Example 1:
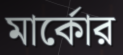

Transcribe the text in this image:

মার্কোর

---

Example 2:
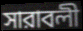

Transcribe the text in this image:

সারাবলী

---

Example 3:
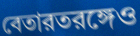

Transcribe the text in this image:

বেতারতরঙ্গেও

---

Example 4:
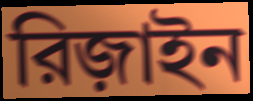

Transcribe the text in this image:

রিজ়াইন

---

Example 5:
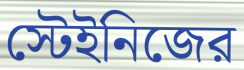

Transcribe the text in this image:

স্টেইনিজের